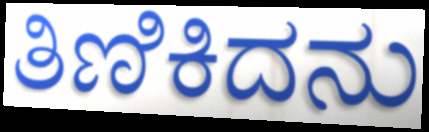
ತಿಣಿಕಿದನು